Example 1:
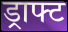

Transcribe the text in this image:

ड्राफ्ट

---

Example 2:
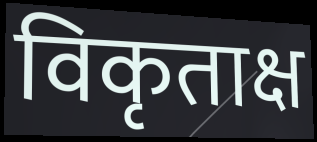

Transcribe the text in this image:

विकृताक्ष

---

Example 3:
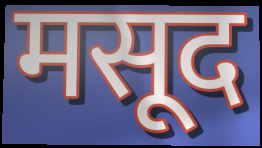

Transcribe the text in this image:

मसूद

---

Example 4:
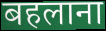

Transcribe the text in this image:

बहलाना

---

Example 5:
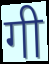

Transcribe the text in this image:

गी